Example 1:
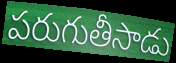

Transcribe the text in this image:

పరుగుతీసాడు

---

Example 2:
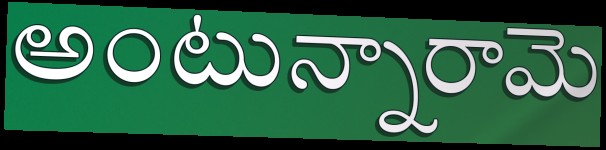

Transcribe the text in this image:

అంటున్నారామె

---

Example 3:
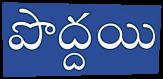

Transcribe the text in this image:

పొద్దయి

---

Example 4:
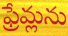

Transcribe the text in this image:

ఫ్రేమ్లను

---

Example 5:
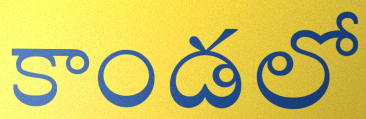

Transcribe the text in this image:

కాండలో